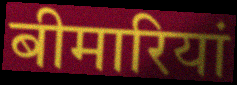
बीमारियां